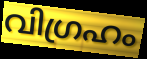
വിഗ്രഹം